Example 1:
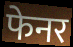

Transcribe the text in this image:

फेनर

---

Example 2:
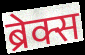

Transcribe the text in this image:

ब्रेक्स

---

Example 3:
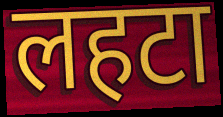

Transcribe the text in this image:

लहटा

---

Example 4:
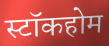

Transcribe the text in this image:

स्टॉकहोम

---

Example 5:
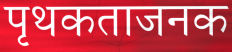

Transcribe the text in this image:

पृथकताजनक